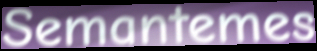
Semantemes